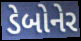
ડેબોનેર